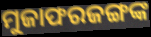
ମୁଜାଫରଜଙ୍ଗଙ୍କ